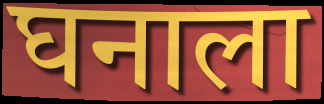
घनाला